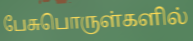
பேசுபொருள்களில்